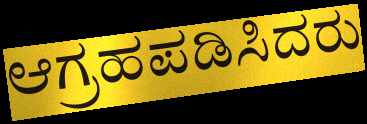
ಆಗ್ರಹಪಡಿಸಿದರು